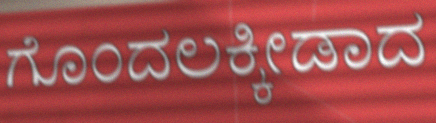
ಗೊಂದಲಕ್ಕೀಡಾದ